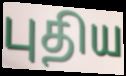
புதிய